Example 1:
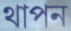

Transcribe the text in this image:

থাপন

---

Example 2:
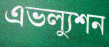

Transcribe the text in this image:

এভল্যুশন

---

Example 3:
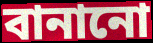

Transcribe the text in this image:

বানানো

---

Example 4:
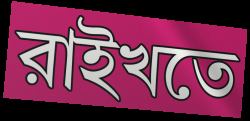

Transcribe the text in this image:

রাইখতে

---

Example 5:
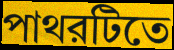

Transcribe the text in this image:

পাথরটিতে